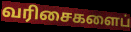
வரிசைகளைப்